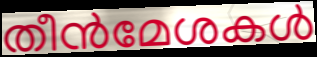
തീൻമേശകൾ